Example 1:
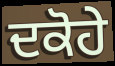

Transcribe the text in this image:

ਦਕੋਹੇ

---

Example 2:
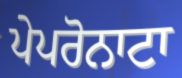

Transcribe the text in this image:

ਪੇਪਰੋਨਾਟਾ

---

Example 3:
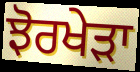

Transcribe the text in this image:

ਝੋਰਖੇੜਾ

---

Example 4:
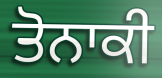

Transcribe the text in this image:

ਤੋਨਾਕੀ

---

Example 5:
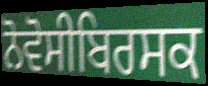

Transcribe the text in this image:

ਨੋਵੋਸੀਬਿਰਸਕ